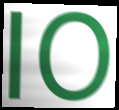
IO